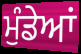
ਮੁੰਡੇਆਂ